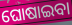
ଘୋଷାଇବା